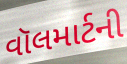
વૉલમાર્ટની